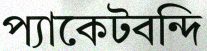
প্যাকেটবন্দি